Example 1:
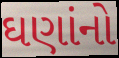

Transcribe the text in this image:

ઘણાંનો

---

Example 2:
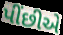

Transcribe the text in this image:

પીંછીએ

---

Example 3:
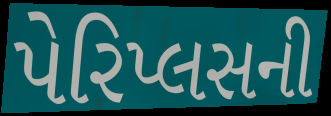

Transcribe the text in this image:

પેરિપ્લસની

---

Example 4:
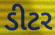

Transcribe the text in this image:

ડીટર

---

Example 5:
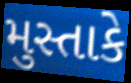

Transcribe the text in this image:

મુસ્તાકે